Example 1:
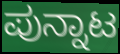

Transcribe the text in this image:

ಪುನ್ನಾಟ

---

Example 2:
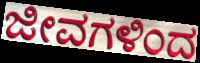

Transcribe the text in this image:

ಜೀವಗಳಿಂದ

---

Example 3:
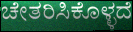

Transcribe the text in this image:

ಚೇತರಿಸಿಕೊಳ್ಳದೆ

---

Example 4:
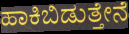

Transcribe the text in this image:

ಹಾಕಿಬಿಡುತ್ತೇನೆ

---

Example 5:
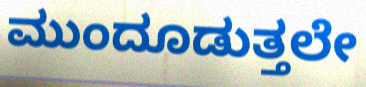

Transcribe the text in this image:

ಮುಂದೂಡುತ್ತಲೇ